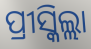
ପ୍ରୀସ୍କିଲ୍ଲା